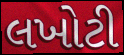
લખોટી